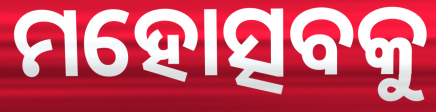
ମହୋତ୍ସବକୁ